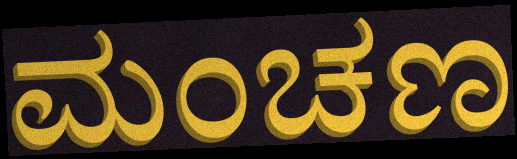
ಮಂಚಣ